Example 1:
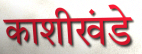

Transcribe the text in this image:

काशीखंडे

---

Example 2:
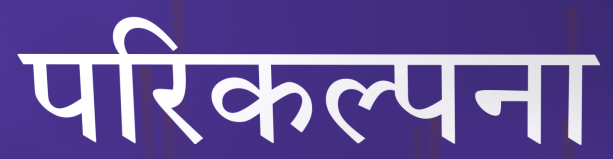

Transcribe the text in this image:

परिकल्पना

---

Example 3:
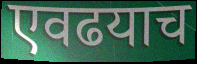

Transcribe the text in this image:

एवढयाच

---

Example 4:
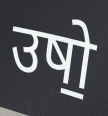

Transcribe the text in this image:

उषो॒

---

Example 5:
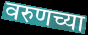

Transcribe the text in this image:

वरुणच्या